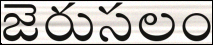
జెరుసలం